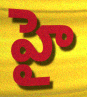
హై